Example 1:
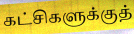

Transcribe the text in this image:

கட்சிகளுக்குத்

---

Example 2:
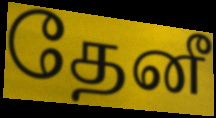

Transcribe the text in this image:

தேனீ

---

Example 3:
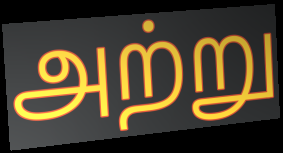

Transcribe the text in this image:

அற்று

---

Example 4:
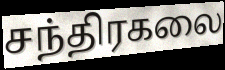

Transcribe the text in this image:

சந்திரகலை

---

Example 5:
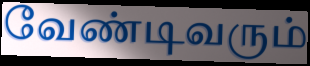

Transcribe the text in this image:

வேண்டிவரும்